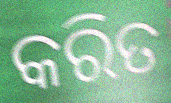
କରିତ